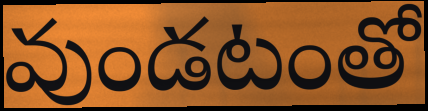
వుండటంతో